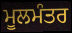
ਮੂਲਮੰਤਰ